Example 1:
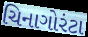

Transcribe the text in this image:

ચિનાગોરંટા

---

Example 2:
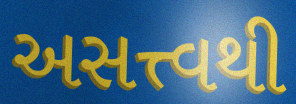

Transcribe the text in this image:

અસત્ત્વથી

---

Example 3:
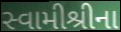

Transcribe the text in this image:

સ્વામીશ્રીના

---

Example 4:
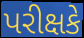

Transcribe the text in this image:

પરીક્ષકે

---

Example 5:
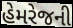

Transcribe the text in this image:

હેમરેજની